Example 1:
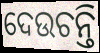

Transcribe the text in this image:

ଦେଉଚନ୍ତି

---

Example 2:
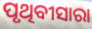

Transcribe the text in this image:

ପୃଥିବୀସାରା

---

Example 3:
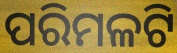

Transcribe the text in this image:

ପରିମଳଟି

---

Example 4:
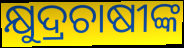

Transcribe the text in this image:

କ୍ଷୁଦ୍ରଚାଷୀଙ୍କ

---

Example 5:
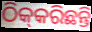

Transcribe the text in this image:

ଠିକ୍‌କରିଛନ୍ତି